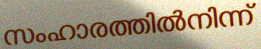
സംഹാരത്തിൽനിന്ന്